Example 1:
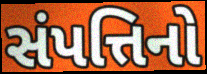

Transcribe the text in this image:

સંપત્તિનો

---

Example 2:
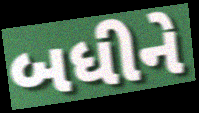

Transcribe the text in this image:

બધીને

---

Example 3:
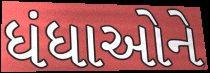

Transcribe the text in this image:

ધંધાઓને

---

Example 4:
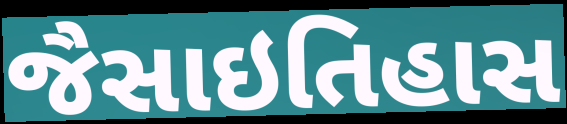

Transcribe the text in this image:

જૈસાઇતિહાસ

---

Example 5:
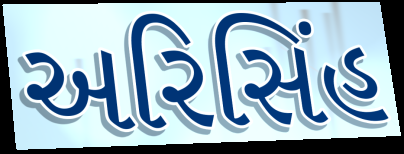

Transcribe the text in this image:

અરિસિંહ